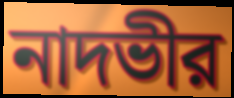
নাদভীর